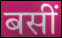
बसीं